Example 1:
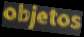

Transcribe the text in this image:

objetos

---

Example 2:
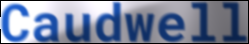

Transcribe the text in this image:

Caudwell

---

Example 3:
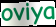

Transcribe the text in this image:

oviya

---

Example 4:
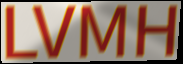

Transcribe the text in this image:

LVMH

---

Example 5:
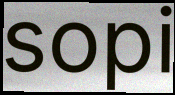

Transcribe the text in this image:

sopi